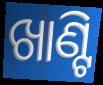
ଖାଣ୍ଟି